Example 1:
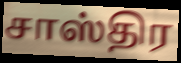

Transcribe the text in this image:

சாஸ்திர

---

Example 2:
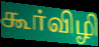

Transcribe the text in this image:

கூர்விழி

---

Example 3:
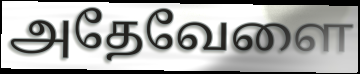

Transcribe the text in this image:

அதேவேளை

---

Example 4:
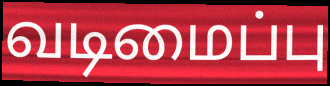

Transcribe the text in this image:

வடிமைப்பு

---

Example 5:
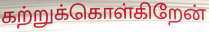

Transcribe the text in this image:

கற்றுக்கொள்கிறேன்